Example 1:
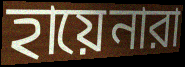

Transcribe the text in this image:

হায়েনারা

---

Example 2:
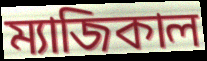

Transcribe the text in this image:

ম্যাজিকাল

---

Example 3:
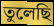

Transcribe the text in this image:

তুলেছি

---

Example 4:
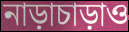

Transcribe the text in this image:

নাড়াচাড়াও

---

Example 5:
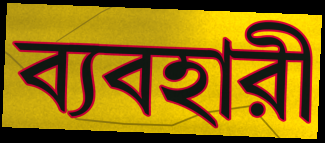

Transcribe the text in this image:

ব্যবহারী